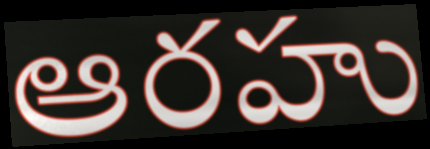
ఆరహు